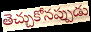
తెచ్చుకోనప్పుడు